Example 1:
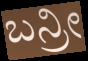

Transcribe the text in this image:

ಬನ್ರೀ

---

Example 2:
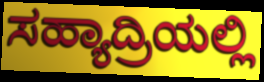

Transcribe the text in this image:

ಸಹ್ಯಾದ್ರಿಯಲ್ಲಿ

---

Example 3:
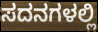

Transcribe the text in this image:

ಸದನಗಳಲ್ಲಿ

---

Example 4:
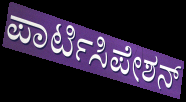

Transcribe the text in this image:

ಪಾರ್ಟಿಸಿಪೇಶನ್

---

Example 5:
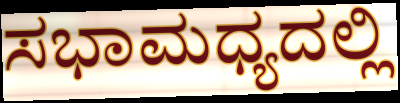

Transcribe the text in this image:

ಸಭಾಮಧ್ಯದಲ್ಲಿ